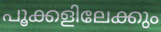
പൂക്കളിലേക്കും